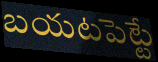
బయటపెట్టే